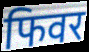
फिवर